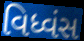
વિધ્વંસ